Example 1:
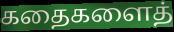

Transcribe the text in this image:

கதைகளைத்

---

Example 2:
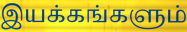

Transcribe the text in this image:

இயக்கங்களும்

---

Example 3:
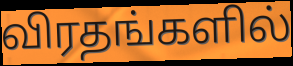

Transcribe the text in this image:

விரதங்களில்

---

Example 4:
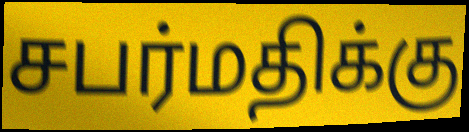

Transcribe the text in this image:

சபர்மதிக்கு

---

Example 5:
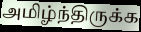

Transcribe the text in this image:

அமிழ்ந்திருக்க